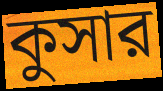
কুসার